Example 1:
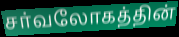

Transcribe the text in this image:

சர்வலோகத்தின்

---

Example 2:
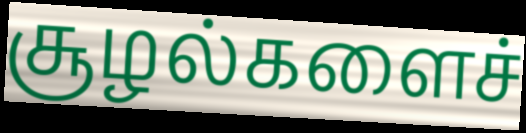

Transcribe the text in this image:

சூழல்களைச்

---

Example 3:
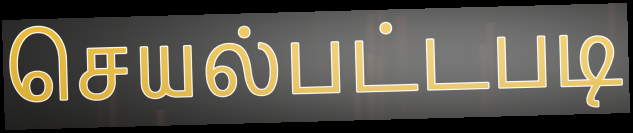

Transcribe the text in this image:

செயல்பட்டபடி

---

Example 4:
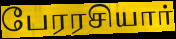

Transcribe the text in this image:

பேரரசியார்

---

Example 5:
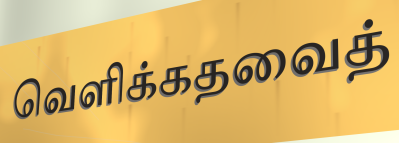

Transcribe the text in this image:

வெளிக்கதவைத்